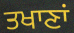
ਤਖਾਣਾਂ